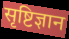
सृष्टिज्ञान